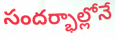
సందర్భాల్లోనే